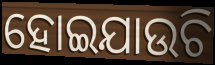
ହୋଇଯାଉଚି